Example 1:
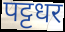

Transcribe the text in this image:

पट्टधर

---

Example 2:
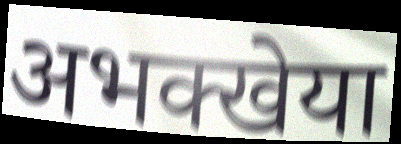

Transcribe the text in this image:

अभक्खेया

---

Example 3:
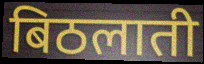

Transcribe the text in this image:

बिठलाती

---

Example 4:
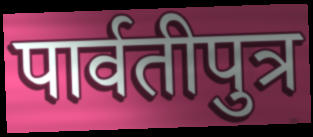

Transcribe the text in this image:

पार्वतीपुत्र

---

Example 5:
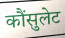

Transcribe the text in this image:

कौंसुलेट